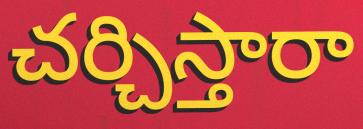
చర్చిస్తారా